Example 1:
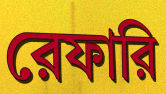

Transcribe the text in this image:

রেফারি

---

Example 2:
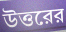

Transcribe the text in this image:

উত্তরের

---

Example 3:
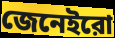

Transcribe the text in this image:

জেনেইরো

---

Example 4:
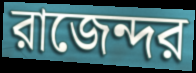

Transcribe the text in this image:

রাজেন্দর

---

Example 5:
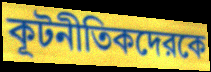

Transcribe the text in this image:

কূটনীতিকদেরকে